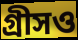
গ্রীসও